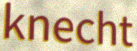
knecht